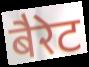
बैरेट